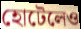
হোটেলেও